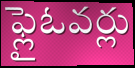
ఫ్లైఓవర్లు